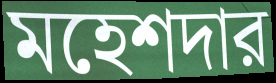
মহেশদার